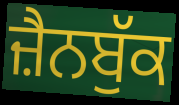
ਜ਼ੈਨਬੁੱਕ